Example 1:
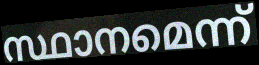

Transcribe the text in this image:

സ്ഥാനമെന്ന്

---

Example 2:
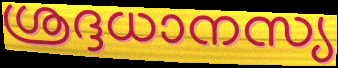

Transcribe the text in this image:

ശ്രദ്ദധാനസ്യ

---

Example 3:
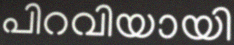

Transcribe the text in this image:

പിറവിയായി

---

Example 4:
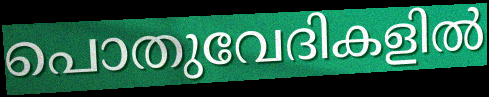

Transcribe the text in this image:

പൊതുവേദികളിൽ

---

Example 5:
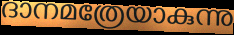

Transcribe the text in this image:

ദാനമത്രേയാകുന്നു